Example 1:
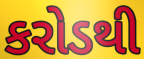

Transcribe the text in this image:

કરોડથી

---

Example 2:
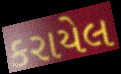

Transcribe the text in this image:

કરાયેલ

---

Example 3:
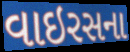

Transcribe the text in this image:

વાઇરસના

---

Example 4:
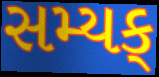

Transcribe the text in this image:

સમ્યક્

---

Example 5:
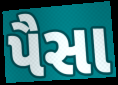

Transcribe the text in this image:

પૈસા